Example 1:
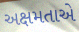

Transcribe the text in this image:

અક્ષમતાએ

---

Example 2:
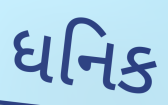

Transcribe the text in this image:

ધનિક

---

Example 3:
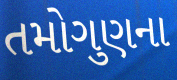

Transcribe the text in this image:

તમોગુણના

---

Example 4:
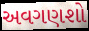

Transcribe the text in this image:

અવગણશો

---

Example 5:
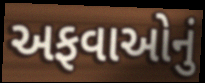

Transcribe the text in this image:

અફવાઓનું